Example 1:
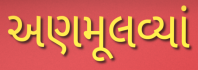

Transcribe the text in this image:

અણમૂલવ્યાં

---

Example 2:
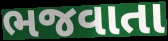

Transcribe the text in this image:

ભજવાતા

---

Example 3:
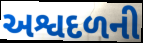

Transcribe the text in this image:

અશ્વદળની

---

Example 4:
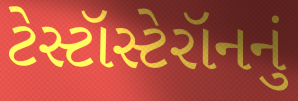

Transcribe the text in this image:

ટેસ્ટૉસ્ટેરૉનનું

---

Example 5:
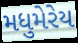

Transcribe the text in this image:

મધુમેરેય